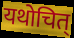
यथोचित्